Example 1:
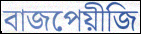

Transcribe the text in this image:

বাজপেয়ীজি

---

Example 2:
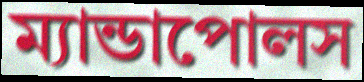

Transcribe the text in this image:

ম্যান্ডাপোলস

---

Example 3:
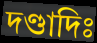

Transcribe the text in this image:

দণ্ডাদিঃ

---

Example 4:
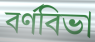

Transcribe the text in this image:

বর্ণবিভা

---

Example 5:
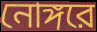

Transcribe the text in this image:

নোঙ্গরে